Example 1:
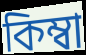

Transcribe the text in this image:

কিম্বা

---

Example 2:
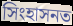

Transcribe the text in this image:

সিংহাসনত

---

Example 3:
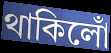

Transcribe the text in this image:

থাকিলোঁ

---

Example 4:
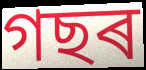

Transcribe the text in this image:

গছৰ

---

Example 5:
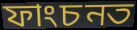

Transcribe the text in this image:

ফাংচনত